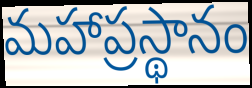
మహాప్రస్థానం